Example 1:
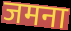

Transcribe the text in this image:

जमना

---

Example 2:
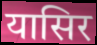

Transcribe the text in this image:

यासिर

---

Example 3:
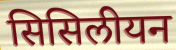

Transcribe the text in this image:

सिसिलीयन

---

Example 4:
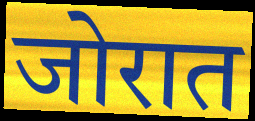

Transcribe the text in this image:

जोरात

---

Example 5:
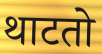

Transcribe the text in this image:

थाटतो